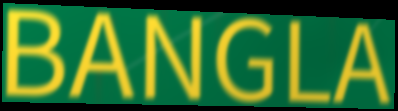
BANGLA